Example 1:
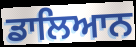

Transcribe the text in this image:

ਡਾਲਿਆਨ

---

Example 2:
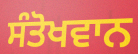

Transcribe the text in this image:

ਸੰਤੋਖਵਾਨ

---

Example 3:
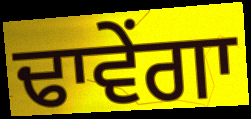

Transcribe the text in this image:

ਢਾਵੇਂਗਾ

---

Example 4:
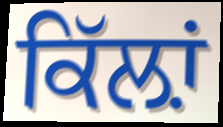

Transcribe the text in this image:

ਕਿੱਲ਼ਾਂ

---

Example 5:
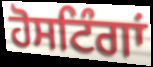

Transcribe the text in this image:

ਹੋਸਟਿੰਗਾਂ